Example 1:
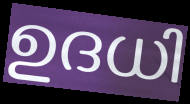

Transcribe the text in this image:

ഉദധി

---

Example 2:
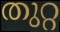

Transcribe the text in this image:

തുറ്റ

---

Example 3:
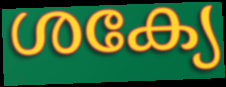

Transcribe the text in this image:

ശക്യേ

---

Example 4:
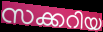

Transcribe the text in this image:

സക്കറിയ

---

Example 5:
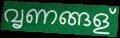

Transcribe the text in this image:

വൃണങ്ങള്